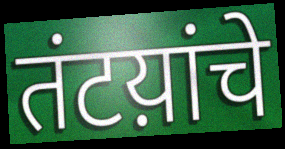
तंटय़ांचे